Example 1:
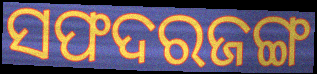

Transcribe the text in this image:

ସଫଦରଜଙ୍ଗ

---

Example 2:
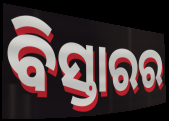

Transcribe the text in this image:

ବିସ୍ତାରର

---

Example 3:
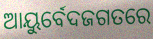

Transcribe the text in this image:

ଆୟୁର୍ବେଦଜଗତରେ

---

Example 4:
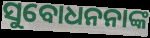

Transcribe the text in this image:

ସୁବୋଧନନାଙ୍କ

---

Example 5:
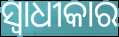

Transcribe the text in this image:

ସ୍ୱାଧୀକାର